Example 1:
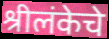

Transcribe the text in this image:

श्रीलंकेचे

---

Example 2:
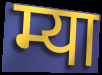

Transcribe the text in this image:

म्या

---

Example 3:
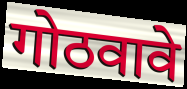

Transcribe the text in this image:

गोठवावे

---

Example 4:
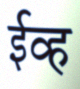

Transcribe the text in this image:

ईव्ह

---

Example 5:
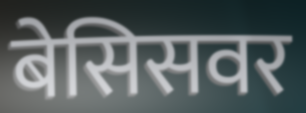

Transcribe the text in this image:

बेसिसवर